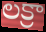
లక్రా